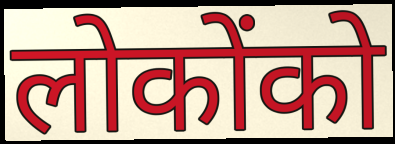
लोकोंको